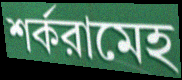
শর্করামেহ